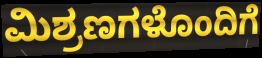
ಮಿಶ್ರಣಗಳೊಂದಿಗೆ